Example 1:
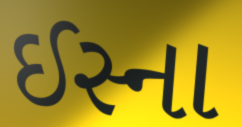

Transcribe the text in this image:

ઈસ્ના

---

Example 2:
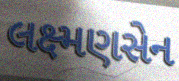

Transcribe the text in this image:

લક્ષ્મણસેન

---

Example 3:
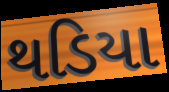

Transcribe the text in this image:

થડિયા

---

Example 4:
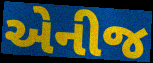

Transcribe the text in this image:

એનીજ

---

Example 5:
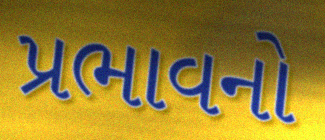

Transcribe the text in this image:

પ્રભાવનો